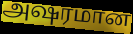
அஷரமான